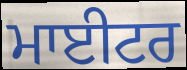
ਮਾਈਟਰ